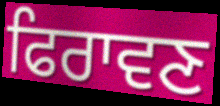
ਫਿਰਾਵਣ